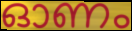
ഓണം